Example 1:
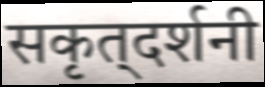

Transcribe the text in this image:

सकृत्‌दर्शनी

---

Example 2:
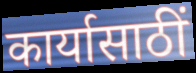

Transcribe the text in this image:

कार्यासाठीं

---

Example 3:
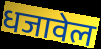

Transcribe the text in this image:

धजावेल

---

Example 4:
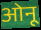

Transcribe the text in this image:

ओनू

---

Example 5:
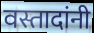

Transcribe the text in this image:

वस्तादांनी